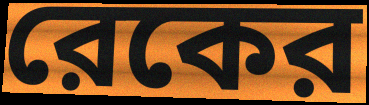
রেকের